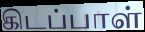
கிடப்பாள்